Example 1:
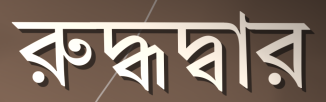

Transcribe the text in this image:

রুদ্ধদ্বার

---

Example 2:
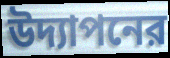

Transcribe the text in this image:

উদ্যাপনের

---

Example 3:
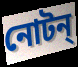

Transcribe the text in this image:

নোটন্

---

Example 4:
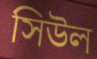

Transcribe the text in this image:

সিউল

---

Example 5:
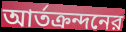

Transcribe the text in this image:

আর্তক্রন্দনের